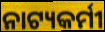
ନାଟ୍ୟକର୍ମୀ